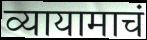
व्यायामाचं